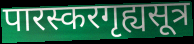
पारस्करगृह्यसूत्र